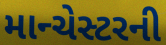
માન્ચેસ્ટરની